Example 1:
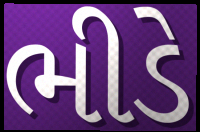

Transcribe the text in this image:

ભીડે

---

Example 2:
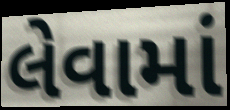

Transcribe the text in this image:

લેવામાં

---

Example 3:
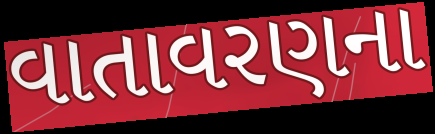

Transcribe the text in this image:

વાતાવરણના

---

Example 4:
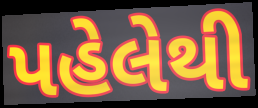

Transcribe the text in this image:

પહેલેથી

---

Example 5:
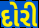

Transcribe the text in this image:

દોરી